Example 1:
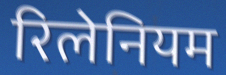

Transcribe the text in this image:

रिलेनियम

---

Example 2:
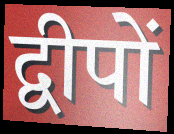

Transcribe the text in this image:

द्वीपों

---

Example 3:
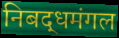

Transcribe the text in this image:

निबद्धमंगल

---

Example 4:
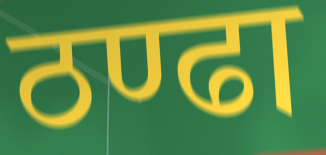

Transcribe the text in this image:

ठण्ढा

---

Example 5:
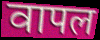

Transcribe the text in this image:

वापल